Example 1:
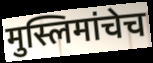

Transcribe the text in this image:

मुस्लिमांचेच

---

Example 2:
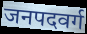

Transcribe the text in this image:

जनपदवर्ग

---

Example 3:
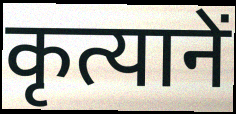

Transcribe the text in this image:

कृत्यानें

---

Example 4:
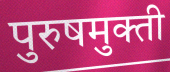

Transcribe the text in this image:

पुरुषमुक्ती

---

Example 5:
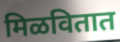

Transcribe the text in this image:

मिळवितात